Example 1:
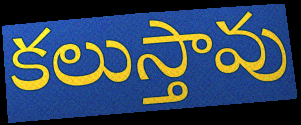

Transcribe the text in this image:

కలుస్తావు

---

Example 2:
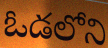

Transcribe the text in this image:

ఓడలోని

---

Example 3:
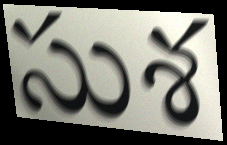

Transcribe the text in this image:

సుశ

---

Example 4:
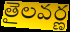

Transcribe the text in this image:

తైలవర్ణ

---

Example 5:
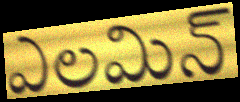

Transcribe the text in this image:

ఎలమిన్